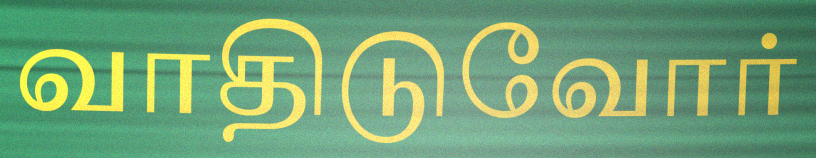
வாதிடுவோர்